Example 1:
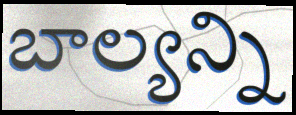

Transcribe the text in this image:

బాల్యన్ని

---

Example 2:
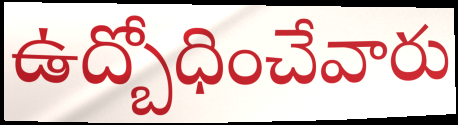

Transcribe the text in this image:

ఉద్బోధించేవారు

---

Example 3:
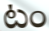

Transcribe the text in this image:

టం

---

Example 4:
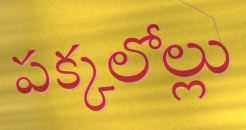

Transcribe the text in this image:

పక్కలోల్లు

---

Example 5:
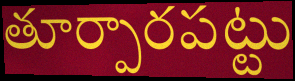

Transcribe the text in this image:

తూర్పారపట్టు